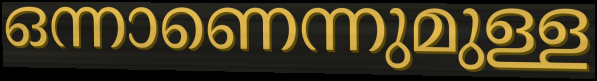
ഒന്നാണെന്നുമുള്ള